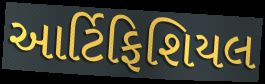
આર્ટિફિશિયલ